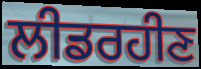
ਲੀਡਰਹੀਣ